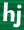
hj